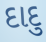
દાદુ